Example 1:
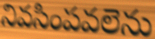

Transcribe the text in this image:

నివసింపవలెను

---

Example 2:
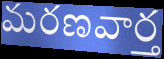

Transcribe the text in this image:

మరణవార్త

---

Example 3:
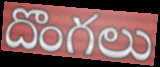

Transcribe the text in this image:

దొంగలు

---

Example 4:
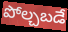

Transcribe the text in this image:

పోల్చబడే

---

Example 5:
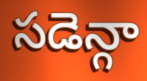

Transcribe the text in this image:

సడెన్గా